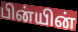
பின்யின்